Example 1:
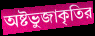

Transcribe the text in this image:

অষ্টভুজাকৃতির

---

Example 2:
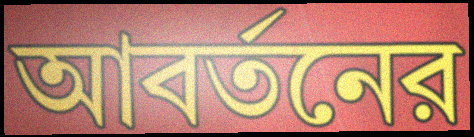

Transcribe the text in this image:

আবর্তনের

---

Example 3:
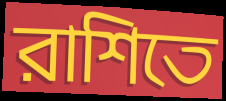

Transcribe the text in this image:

রাশিতে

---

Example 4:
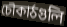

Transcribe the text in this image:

চৌকাঠগুলি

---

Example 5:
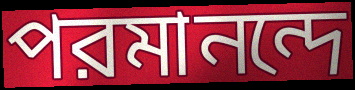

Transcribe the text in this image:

পরমানন্দে